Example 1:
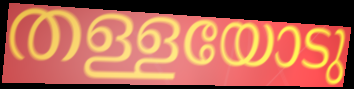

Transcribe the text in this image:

തള്ളയോടു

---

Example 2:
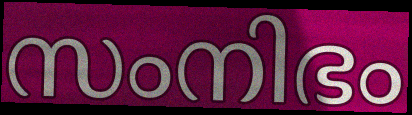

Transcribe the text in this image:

സംനിഭം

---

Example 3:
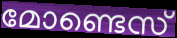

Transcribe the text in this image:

മോണ്ടെസ്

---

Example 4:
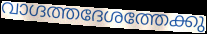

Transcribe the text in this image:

വാഗ്ദത്തദേശത്തേക്കു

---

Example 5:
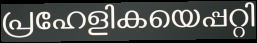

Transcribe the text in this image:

പ്രഹേളികയെപ്പറ്റി